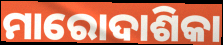
ମାରୋଦାଶିକା